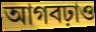
আগবঢ়াও